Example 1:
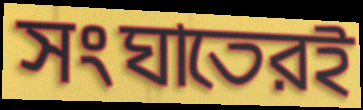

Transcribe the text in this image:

সংঘাতেরই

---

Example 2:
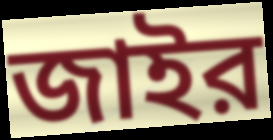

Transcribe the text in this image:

জাইর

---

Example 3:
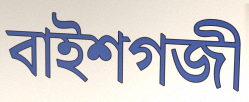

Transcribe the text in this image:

বাইশগজী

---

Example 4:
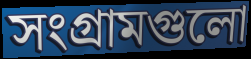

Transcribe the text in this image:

সংগ্রামগুলো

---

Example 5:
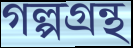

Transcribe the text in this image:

গল্পগ্রন্থ